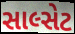
સાલ્સેટ